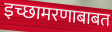
इच्छामरणाबाबत